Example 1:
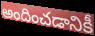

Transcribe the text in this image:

అందించడానికీ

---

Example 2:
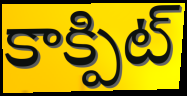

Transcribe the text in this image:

కాక్పిట్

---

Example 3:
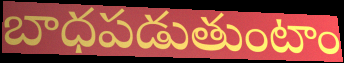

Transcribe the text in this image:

బాధపడుతుంటాం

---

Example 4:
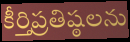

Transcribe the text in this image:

కీర్తిప్రతిష్ఠలను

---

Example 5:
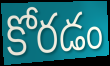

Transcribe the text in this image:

కోరడం